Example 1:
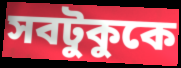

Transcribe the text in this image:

সবটুকুকে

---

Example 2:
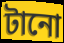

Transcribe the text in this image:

টানো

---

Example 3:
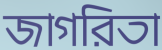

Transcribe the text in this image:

জাগরিতা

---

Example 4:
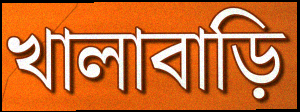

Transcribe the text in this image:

খালাবাড়ি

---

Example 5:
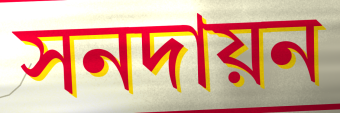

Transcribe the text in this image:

সনদায়ন